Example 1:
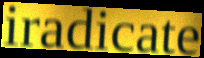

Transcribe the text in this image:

iradicate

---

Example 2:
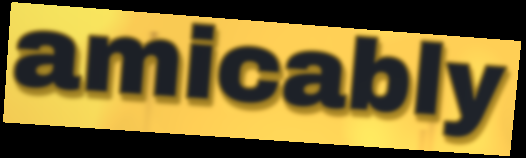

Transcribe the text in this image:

amicably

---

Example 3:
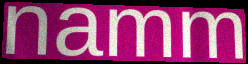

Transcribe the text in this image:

namm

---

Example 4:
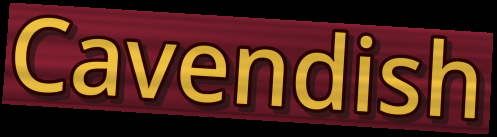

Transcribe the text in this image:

Cavendish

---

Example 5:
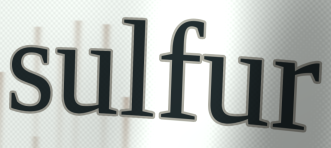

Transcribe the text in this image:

sulfur